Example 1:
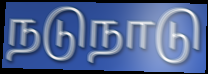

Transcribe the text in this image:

நடுநாடு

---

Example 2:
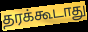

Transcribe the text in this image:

தரக்கூடாது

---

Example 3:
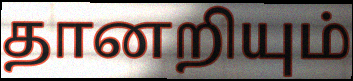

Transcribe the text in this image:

தானறியும்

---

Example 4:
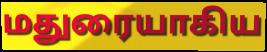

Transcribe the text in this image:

மதுரையாகிய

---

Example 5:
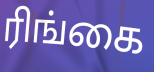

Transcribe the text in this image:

ரிங்கை